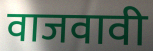
वाजवावी